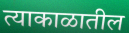
त्याकाळातील